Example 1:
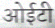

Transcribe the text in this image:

ओईटी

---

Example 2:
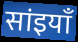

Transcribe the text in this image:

सांइयाँ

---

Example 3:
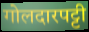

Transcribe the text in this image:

गोलदारपट्टी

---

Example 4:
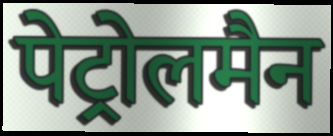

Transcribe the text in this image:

पेट्रोलमैन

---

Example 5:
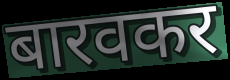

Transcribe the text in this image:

बारवकर